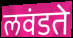
लवंडते